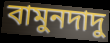
বামুনদাদু